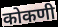
कोकणी